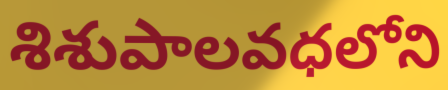
శిశుపాలవధలోని